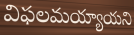
విఫలమయ్యాయని